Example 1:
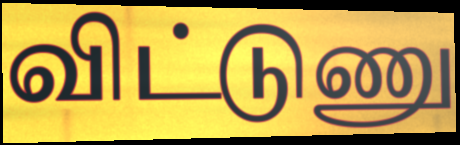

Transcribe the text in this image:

விட்டுணு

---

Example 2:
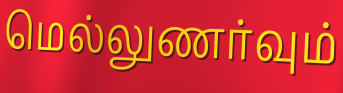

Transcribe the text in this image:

மெல்லுணர்வும்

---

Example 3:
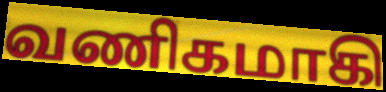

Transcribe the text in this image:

வணிகமாகி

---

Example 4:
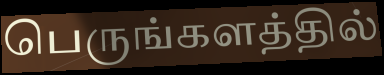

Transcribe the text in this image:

பெருங்களத்தில்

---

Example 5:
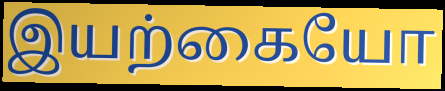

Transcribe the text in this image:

இயற்கையோ